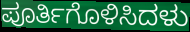
ಪೂರ್ತಿಗೊಳಿಸಿದಳು